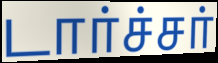
டார்ச்சர்